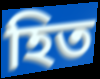
হিত